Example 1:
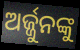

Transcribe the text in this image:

ଅର୍ଜ୍ଜୁନଙ୍କୁ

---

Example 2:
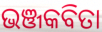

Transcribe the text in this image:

ଭଞ୍ଜକବିତା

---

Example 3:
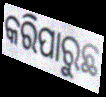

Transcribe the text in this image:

କରିପାରୁଛ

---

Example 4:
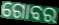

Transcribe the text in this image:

ଗୋବର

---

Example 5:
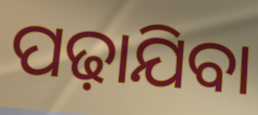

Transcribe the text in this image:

ପଢ଼ାଯିବା